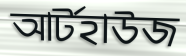
আর্টহাউজ